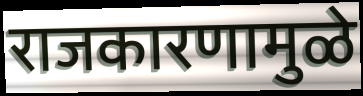
राजकारणामुळे